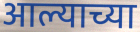
आल्याच्या